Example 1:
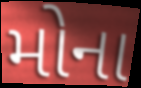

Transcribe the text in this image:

મોના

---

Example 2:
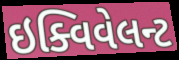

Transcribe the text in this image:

ઇક્વિવેલન્ટ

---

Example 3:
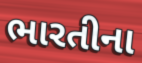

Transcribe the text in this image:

ભારતીના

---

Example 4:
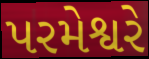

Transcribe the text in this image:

પરમેશ્વરે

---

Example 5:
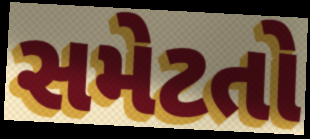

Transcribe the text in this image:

સમેટતો